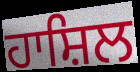
ਹਾਸ਼ਿਲ